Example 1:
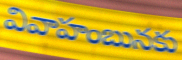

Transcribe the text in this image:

వివాహంబునకు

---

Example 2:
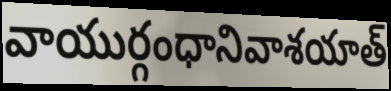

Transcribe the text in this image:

వాయుర్గంధానివాశయాత్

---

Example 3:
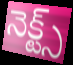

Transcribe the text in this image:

నెక్ట్స్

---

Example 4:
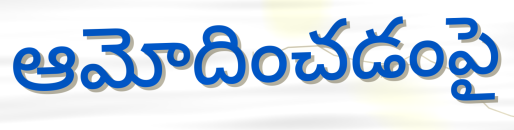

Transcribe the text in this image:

ఆమోదించడంపై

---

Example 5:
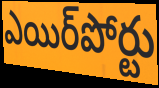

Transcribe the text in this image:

ఎయిర్‌పోర్టు